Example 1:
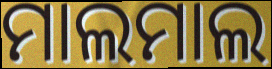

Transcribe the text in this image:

ମାଲମାଲ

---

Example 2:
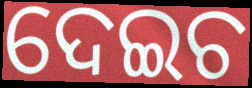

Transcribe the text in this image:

ଦେଇଚ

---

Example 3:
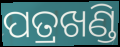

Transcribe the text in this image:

ପତ୍ରଖଣ୍ଡି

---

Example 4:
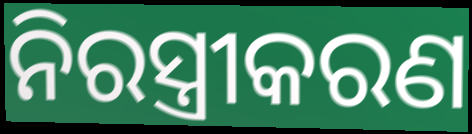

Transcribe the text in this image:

ନିରସ୍ତ୍ରୀକରଣ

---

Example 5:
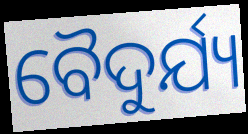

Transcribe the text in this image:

ବୈଦୁର୍ଯ୍ୟ